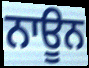
ਨਾਊਨ